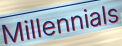
Millennials